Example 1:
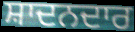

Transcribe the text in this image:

ਸ਼ਾਦਨਦਾਰ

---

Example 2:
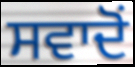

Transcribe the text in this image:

ਸਵਾਦੋਂ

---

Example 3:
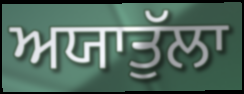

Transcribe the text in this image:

ਅਯਾਤੁੱਲਾ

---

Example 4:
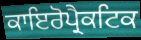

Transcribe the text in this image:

ਕਾਇਰੋਪ੍ਰੈਕਟਿਕ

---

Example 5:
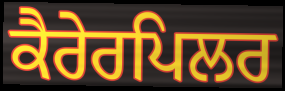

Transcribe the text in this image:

ਕੈਰੇਰਪਿਲਰ